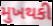
મુખથકી